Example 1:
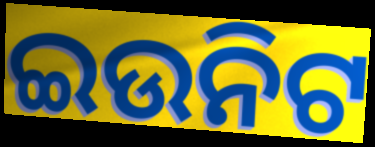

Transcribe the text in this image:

ଇଉନିଟ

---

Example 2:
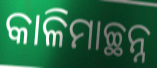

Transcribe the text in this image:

କାଳିମାଚ୍ଛନ୍ନ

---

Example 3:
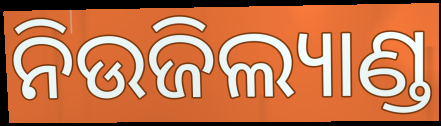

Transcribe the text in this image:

ନିଉଜିଲ୍ୟାଣ୍ଡ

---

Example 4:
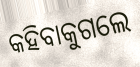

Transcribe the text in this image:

କହିବାକୁଗଲେ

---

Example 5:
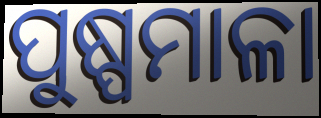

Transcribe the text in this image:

ପୁଷ୍ପମାଳା